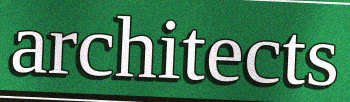
architects